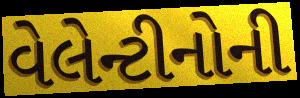
વેલેન્ટીનોની